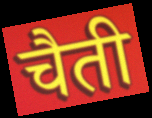
चैती